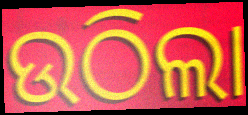
ଉଠିଲା